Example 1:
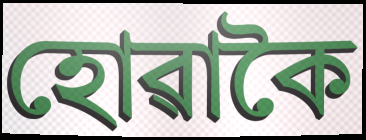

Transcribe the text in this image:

হোৱাকৈ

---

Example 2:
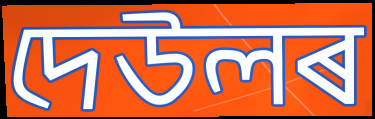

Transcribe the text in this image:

দেউলৰ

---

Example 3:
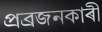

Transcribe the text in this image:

প্ৰব্ৰজনকাৰী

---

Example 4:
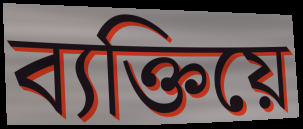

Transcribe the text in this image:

ব্যক্তিয়ে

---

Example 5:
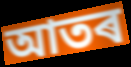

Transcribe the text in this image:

আতৰ